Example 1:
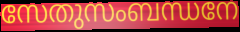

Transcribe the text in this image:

സേതുസംബന്ധനേ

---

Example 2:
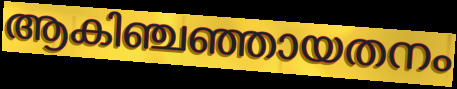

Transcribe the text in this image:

ആകിഞ്ചഞ്ഞായതനം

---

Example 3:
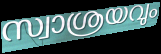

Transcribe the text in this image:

സ്വാശ്രയവും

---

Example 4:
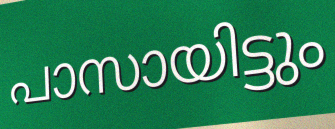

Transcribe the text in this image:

പാസായിട്ടും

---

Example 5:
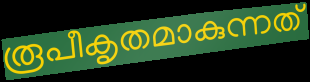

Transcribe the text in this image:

രൂപീകൃതമാകുന്നത്